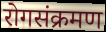
रोगसंक्रमण